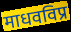
माधवविप्र